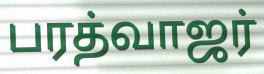
பரத்வாஜர்